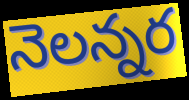
నెలన్నర